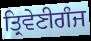
ਤ੍ਰਿਵੇਣੀਗੰਜ